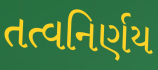
તત્વનિર્ણય